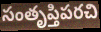
సంతృప్తిపరచి